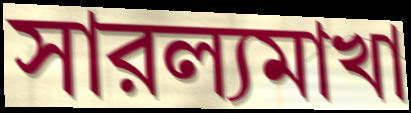
সারল্যমাখা